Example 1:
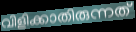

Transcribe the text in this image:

വിളിക്കാതിരുന്നത്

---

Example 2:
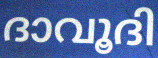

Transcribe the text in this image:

ദാവൂദി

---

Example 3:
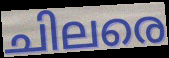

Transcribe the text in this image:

ചിലരെ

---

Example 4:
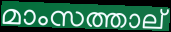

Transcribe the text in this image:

മാംസത്താല്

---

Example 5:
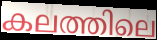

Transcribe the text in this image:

കലത്തിലെ